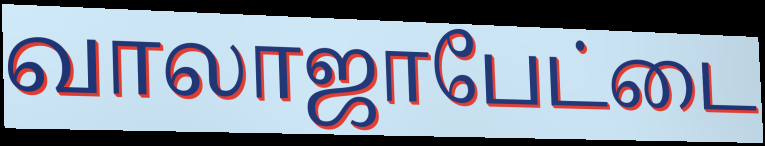
வாலாஜாபேட்டை